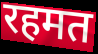
रहमत